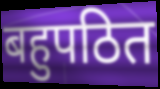
बहुपठित